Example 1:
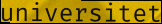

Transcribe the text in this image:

universitet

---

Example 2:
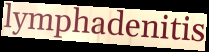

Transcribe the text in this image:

lymphadenitis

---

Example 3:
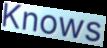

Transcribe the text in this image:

Knows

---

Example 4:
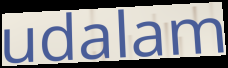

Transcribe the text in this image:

udalam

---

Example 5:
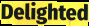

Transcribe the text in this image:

Delighted